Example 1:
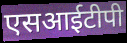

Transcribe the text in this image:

एसआईटीपी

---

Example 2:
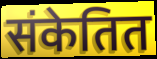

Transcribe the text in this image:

संकेतित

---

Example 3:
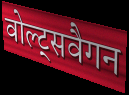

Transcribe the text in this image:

वोल्ट्सवैगन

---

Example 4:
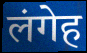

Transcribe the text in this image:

लंगेह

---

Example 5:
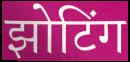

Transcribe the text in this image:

झोटिंग